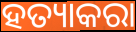
ହତ୍ୟାକରା